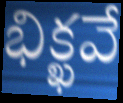
భిక్ఖవే